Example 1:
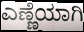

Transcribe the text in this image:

ಎಣ್ಣೆಯಾಗಿ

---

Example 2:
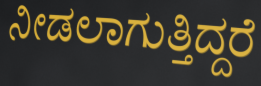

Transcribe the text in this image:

ನೀಡಲಾಗುತ್ತಿದ್ದರೆ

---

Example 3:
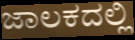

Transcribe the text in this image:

ಜಾಲಕದಲ್ಲಿ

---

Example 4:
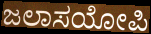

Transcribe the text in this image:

ಜಲಾಸಯೋಪಿ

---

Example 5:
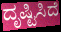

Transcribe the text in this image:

ದೃಷ್ಟಿಸಿದೆ